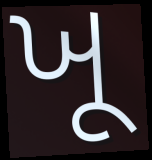
ખૂ